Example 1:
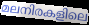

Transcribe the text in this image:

മലനിരകളിലെ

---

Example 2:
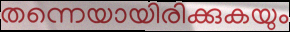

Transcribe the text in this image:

തന്നെയായിരിക്കുകയും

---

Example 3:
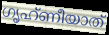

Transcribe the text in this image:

ഗൃഹ്ണീയാത്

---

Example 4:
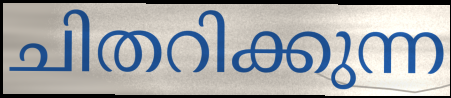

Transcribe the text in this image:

ചിതറിക്കുന്ന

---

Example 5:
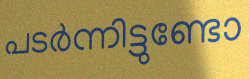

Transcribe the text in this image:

പടർന്നിട്ടുണ്ടോ